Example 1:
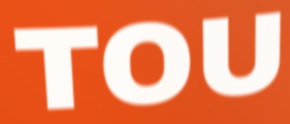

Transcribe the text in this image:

TOU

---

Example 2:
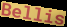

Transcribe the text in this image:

Bellis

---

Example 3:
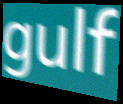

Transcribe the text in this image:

gulf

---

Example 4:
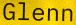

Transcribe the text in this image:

Glenn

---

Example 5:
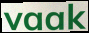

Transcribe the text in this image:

vaak